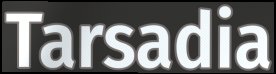
Tarsadia